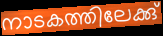
നാടകത്തിലേക്കു്